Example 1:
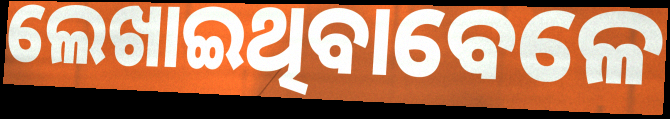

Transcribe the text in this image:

ଲେଖାଇଥିବାବେଳେ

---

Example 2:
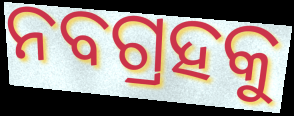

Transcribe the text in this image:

ନବଗ୍ରହକୁ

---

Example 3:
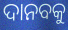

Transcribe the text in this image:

ଦାନବକୁ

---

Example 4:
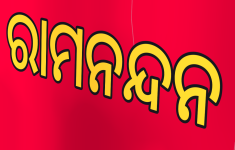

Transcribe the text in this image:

ରାମନନ୍ଦନ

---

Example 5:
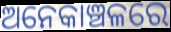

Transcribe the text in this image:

ଅନେକାଞ୍ଚଳରେ